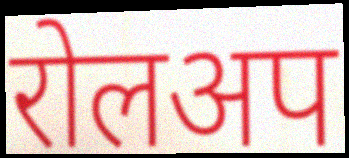
रोलअप